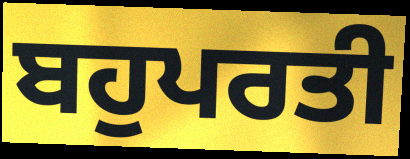
ਬਹੁਪਰਤੀ